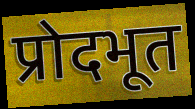
प्रोदभूत